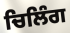
ਚਿਲਿੰਗ